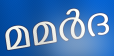
മമർദ